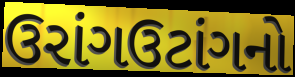
ઉરાંગઉટાંગનો